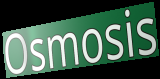
Osmosis